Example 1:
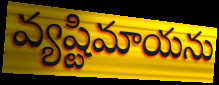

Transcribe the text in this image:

వ్యష్టిమాయను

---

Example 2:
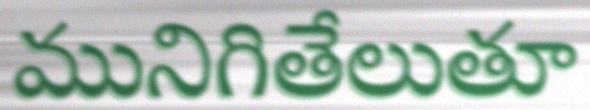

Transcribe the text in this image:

మునిగితేలుతూ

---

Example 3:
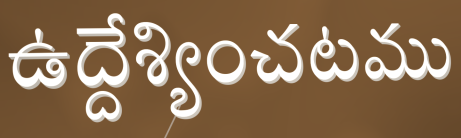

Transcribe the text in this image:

ఉద్దేశ్యించటము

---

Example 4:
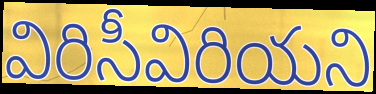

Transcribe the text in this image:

విరిసీవిరియని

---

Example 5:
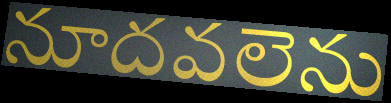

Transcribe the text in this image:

నూదవలెను